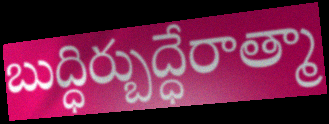
బుద్ధిర్బుద్ధేరాత్మా